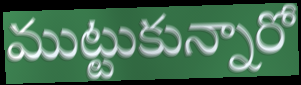
ముట్టుకున్నారో